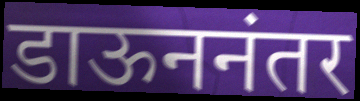
डाऊननंतर